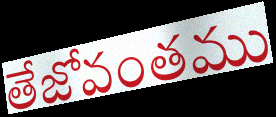
తేజోవంతము